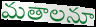
మతాలనూ